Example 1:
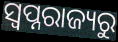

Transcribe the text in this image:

ସ୍ୱପ୍ନରାଜ୍ୟରୁ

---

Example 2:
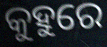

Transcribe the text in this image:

କୁହୁରେ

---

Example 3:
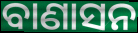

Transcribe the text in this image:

ବାଣାସନ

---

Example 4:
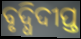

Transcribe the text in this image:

ବୃଦ୍ଧିଦୀପ୍ତ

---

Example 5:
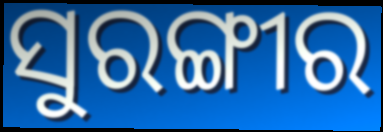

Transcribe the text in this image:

ସୁରଙ୍ଗୀର